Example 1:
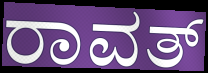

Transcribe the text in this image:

ರಾವತ್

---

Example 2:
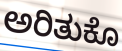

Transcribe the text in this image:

ಅರಿತುಕೊ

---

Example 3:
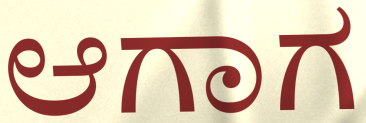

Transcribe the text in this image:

ಆಗಾಗ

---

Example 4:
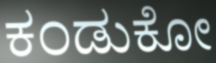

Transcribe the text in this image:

ಕಂಡುಕೋ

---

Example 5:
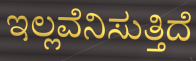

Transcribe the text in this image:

ಇಲ್ಲವೆನಿಸುತ್ತಿದೆ